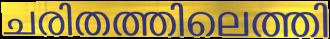
ചരിതത്തിലെത്തി